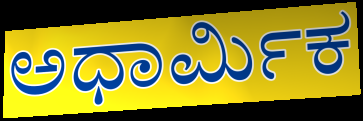
ಅಧಾರ್ಮಿಕ